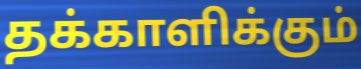
தக்காளிக்கும்